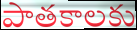
పాతకాలకు